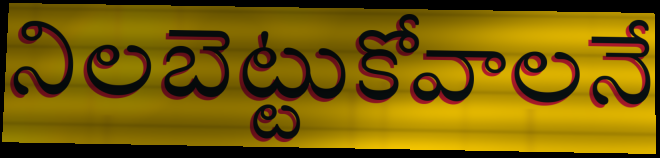
నిలబెట్టుకోవాలనే